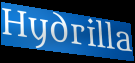
Hydrilla